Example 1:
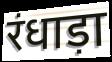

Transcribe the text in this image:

रंधाड़ा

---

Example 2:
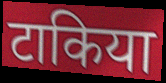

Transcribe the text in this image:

टाकिया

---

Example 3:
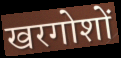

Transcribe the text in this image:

खरगोशों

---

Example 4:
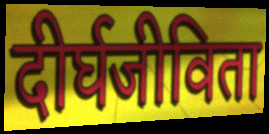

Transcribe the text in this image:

दीर्घजीविता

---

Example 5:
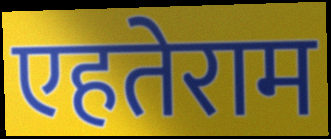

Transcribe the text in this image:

एहतेराम